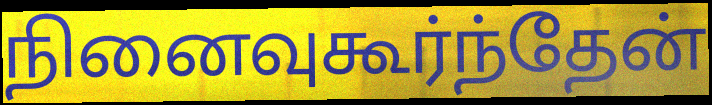
நினைவுகூர்ந்தேன்